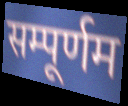
सम्पूर्णम